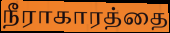
நீராகாரத்தை